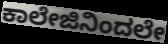
ಕಾಲೇಜಿನಿಂದಲೇ